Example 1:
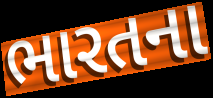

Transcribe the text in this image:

ભારતના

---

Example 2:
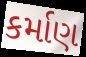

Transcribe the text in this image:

કર્માણ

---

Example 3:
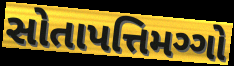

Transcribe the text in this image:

સોતાપત્તિમગ્ગો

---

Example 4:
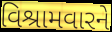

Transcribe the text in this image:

વિશ્રામવારને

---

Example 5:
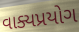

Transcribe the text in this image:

વાક્યપ્રયોગ